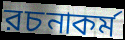
রচনাকর্ম